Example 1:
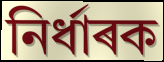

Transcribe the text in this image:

নিৰ্ধাৰক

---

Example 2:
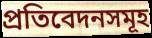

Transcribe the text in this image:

প্ৰতিবেদনসমূহ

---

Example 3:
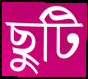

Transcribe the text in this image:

ছুটি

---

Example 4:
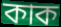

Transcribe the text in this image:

কাক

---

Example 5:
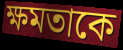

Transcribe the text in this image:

ক্ষমতাকে